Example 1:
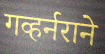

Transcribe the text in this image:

गव्हर्नराने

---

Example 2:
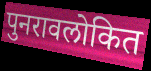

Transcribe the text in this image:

पुनरावलोकित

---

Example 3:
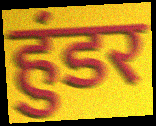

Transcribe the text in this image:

हुंडर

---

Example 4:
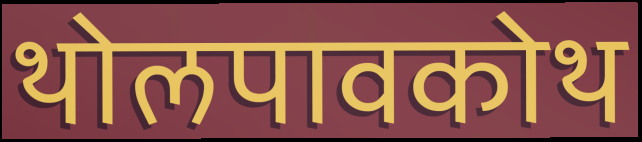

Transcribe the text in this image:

थोलपावकोथ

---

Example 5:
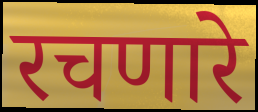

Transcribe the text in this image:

रचणारे